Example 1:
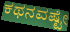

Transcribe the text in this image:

ಕಥನವಷ್ಟೇ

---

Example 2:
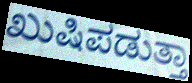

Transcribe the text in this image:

ಖುಷಿಪಡುತ್ತಾ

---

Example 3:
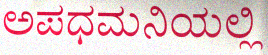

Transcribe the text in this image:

ಅಪಧಮನಿಯಲ್ಲಿ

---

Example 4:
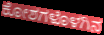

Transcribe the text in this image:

ಕೋಶಗಳೊಳಗಿನ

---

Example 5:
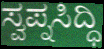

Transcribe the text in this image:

ಸ್ವಪ್ನಸಿದ್ಧಿ